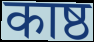
काष्ठ